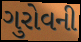
ગુરોવની